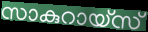
സാകുറായ്സ്